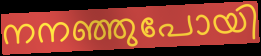
നനഞ്ഞുപോയി